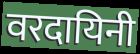
वरदायिनी